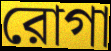
রোগা